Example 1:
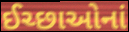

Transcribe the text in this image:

ઈચ્છાઓનાં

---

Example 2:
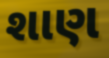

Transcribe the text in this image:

શાણ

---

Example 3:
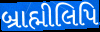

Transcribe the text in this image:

બ્રાહ્મીલિપિ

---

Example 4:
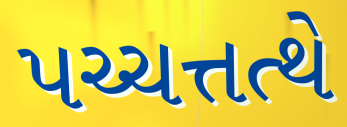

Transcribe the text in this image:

પચ્ચત્તત્થે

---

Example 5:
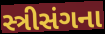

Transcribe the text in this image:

સ્ત્રીસંગના